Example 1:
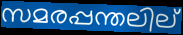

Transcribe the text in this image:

സമരപ്പന്തലില്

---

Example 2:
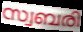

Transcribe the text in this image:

സ്വബരി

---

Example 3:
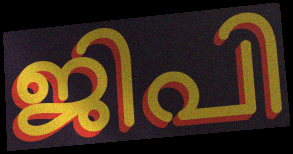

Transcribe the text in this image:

ജിപി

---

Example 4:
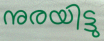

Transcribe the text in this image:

നുരയിട്ടു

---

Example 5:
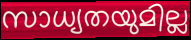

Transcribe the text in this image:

സാധ്യതയുമില്ല